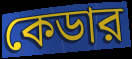
কেডার